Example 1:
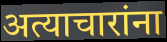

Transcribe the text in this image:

अत्याचारांना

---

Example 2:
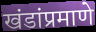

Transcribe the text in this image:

खंडांप्रमाणे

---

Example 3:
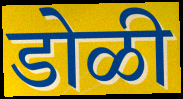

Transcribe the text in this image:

डोळी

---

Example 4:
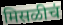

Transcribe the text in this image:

मिसळीचं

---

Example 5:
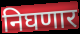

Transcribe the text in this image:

निघणार